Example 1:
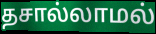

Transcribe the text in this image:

தசால்லாமல்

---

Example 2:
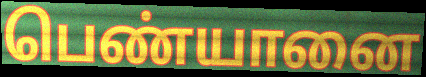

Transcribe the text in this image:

பெண்யானை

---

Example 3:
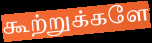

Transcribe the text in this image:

கூற்றுக்களே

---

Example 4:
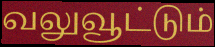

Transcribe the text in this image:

வலுவூட்டும்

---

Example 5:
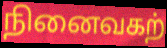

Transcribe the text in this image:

நினைவகற்